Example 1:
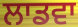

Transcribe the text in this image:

ਲਾਡਵਾ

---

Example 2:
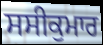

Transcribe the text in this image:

ਸਸੀਕੁਮਾਰ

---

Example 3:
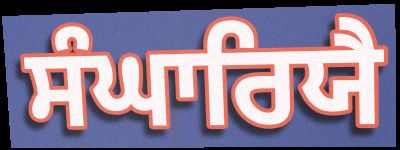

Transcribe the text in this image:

ਸੰਘਾਰਿਯੈ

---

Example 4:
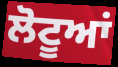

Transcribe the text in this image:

ਲੋਟੂਆਂ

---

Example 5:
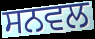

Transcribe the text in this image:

ਸਨਵਲ